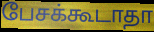
பேசக்கூடாதா